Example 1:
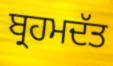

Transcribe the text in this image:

ਬ੍ਰਹਮਦੱਤ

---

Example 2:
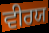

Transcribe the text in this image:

ਵੀਰਯ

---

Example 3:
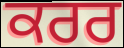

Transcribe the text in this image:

ਕਰਰ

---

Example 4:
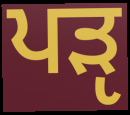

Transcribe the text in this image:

ਪੜੵ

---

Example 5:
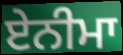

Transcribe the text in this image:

ਏਨੀਮਾ